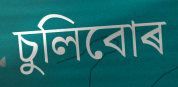
চুলিবোৰ